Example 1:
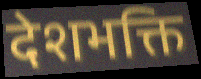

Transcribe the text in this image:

देशभक्ति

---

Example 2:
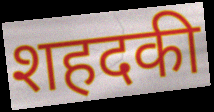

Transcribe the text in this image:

शहदकी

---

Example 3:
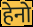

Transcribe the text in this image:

हेनो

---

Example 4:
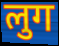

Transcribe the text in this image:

लुग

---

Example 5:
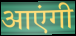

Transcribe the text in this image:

आएंगी